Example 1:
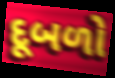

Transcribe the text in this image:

દૂબળો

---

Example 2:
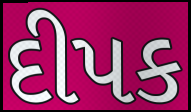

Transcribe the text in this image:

દીપક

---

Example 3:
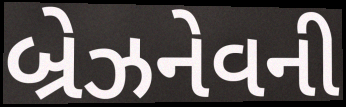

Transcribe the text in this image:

બ્રેઝનેવની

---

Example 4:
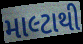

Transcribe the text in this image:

માલ્ટાથી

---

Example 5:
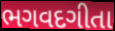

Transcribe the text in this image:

ભગવદગીતા